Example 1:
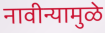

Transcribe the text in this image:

नावीन्यामुळे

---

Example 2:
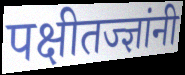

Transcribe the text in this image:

पक्षीतज्ज्ञांनी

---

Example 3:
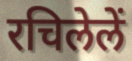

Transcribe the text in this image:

रचिलेलें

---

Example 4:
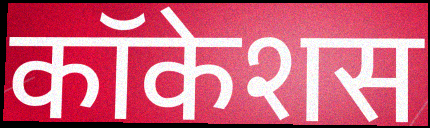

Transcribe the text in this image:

कॉकेशस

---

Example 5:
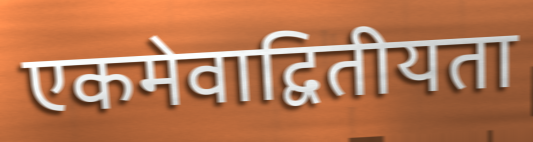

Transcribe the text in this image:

एकमेवाद्वितीयता